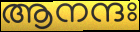
ആനന്ദഃ